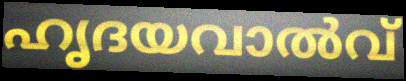
ഹൃദയവാൽവ്